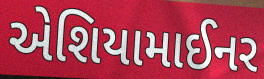
એશિયામાઈનર